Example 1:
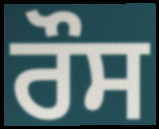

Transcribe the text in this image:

ਰੌਸ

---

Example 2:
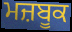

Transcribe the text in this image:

ਮਜ਼ਬੂਕ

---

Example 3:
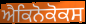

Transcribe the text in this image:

ਐਕਿਨੋਕੋਕਸ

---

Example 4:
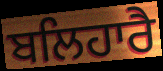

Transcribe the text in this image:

ਬਲਿਹਾਰੈ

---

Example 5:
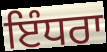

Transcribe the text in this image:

ਇੰਧਰਾ